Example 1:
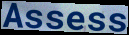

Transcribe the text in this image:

Assess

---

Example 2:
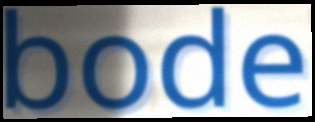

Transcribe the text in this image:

bode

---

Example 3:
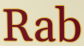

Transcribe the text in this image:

Rab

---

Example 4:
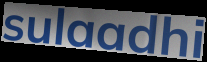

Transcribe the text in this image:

sulaadhi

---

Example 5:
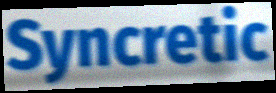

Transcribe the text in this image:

Syncretic